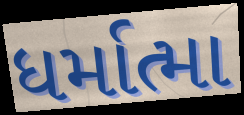
ધર્માત્મા